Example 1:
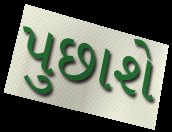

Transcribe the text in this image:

પુછાશે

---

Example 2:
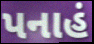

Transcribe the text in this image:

પનાહં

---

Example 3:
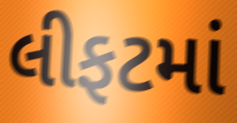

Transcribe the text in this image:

લીફટમાં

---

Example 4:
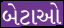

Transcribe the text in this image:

બેટાઓ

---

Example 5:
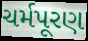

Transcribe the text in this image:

ચર્મપૂરણ